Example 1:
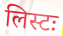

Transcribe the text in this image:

लिस्टः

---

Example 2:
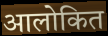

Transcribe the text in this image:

आलोकित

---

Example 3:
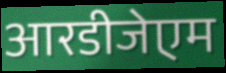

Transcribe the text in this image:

आरडीजेएम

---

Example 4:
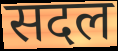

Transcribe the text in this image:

सदल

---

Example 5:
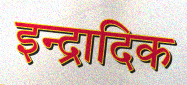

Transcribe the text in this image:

इन्द्रादिक